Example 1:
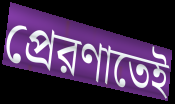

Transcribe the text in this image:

প্রেরণাতেই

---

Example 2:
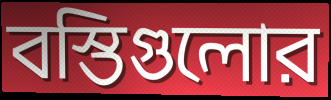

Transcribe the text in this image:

বস্তিগুলোর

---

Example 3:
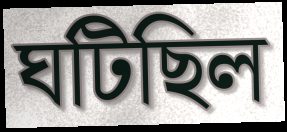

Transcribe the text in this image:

ঘটিছিল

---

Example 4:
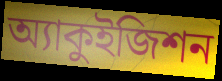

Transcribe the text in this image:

অ্যাকুইজিশন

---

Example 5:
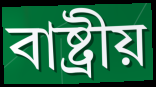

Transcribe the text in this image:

বাষ্ট্রীয়